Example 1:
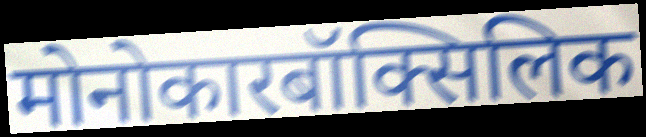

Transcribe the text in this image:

मोनोकारबॉक्सिलिक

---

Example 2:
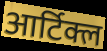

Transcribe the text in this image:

आर्टिक्ल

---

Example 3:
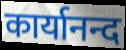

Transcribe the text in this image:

कार्यानन्द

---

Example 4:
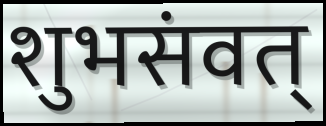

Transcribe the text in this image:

शुभसंवत्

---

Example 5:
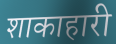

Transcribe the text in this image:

शाकाहारी